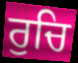
ਰੁਚਿ